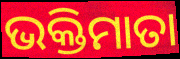
ଭକ୍ତିମାତା